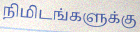
நிமிடங்களுக்கு